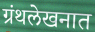
ग्रंथलेखनात